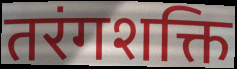
तरंगशक्ति